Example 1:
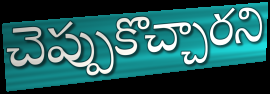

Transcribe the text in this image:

చెప్పుకొచ్చారని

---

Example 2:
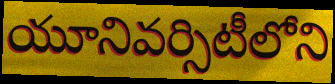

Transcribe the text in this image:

యూనివర్సిటీలోని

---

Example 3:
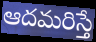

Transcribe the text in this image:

ఆదమరిస్తే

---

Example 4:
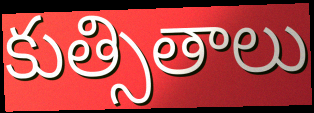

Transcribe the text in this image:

కుత్సితాలు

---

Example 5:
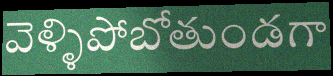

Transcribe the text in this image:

వెళ్ళిపోబోతుండగా